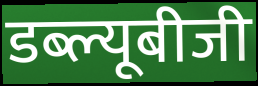
डब्ल्यूबीजी